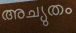
അച്യുതം